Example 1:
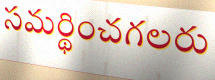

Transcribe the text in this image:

సమర్థించగలరు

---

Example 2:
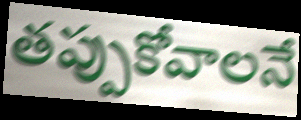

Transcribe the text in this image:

తప్పుకోవాలనే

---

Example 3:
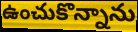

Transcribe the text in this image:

ఉంచుకొన్నాను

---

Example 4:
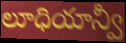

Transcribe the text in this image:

లూధియాన్వీ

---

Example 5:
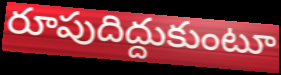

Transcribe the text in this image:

రూపుదిద్దుకుంటూ